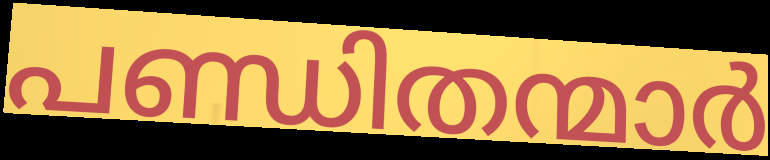
പണ്ഡിതന്മാർ